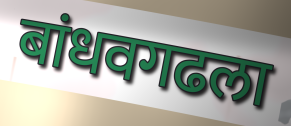
बांधवगढला